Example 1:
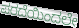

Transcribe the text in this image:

ಪರದೆಯಿಂದಲೇ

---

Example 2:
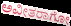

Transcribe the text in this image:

ಅವೀತರಾಗೋ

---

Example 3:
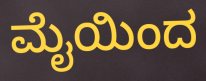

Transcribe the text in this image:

ಮೈಯಿಂದ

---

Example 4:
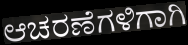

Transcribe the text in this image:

ಆಚರಣೆಗಳಿಗಾಗಿ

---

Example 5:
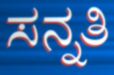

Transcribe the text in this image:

ಸನ್ನತಿ